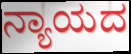
ನ್ಯಾಯದ